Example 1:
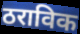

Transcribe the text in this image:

ठराविक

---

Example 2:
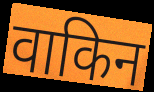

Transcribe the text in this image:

वाकिन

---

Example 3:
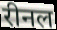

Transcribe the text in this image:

रीनल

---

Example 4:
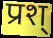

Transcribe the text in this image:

प्रश्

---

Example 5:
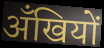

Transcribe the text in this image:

अँखियों